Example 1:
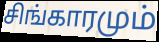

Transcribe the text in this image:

சிங்காரமும்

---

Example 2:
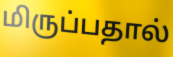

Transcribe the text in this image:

மிருப்பதால்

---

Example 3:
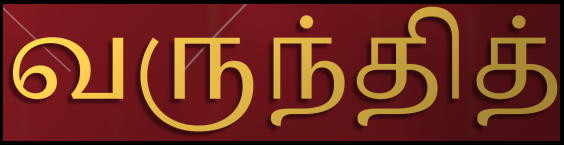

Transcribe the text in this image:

வருந்தித்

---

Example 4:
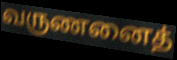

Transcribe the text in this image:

வருணனைத்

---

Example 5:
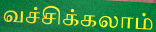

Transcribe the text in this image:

வச்சிக்கலாம்